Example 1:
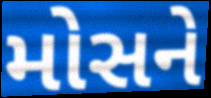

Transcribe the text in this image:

મોસને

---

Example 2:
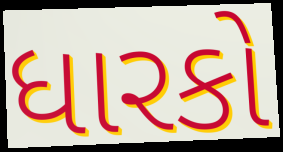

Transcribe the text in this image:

ધારકો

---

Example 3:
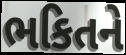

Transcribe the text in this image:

ભકિતને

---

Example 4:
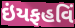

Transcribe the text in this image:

ઇંયફહવિં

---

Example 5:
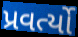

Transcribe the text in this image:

પ્રવર્ત્યો